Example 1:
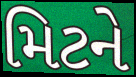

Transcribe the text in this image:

મિટને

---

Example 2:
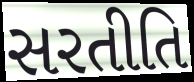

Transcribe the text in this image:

સરતીતિ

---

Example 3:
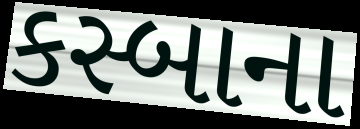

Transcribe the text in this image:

કસ્બાના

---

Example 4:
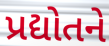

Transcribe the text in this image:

પ્રદ્યોતને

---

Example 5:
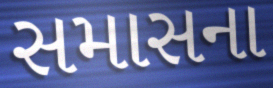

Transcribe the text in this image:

સમાસના